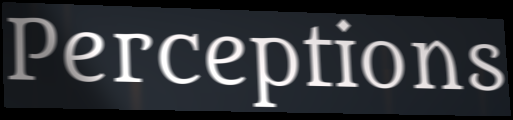
Perceptions